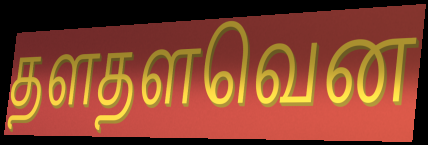
தளதளவென